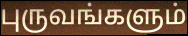
புருவங்களும்